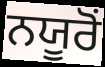
ਨਯੂਰੋਂ